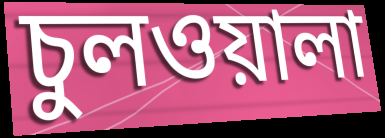
চুলওয়ালা